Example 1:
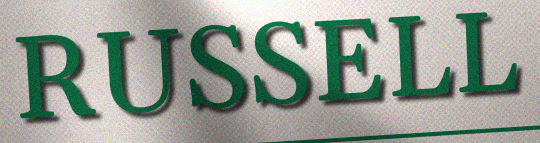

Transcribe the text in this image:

RUSSELL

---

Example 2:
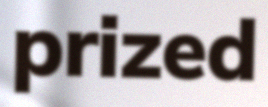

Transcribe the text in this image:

prized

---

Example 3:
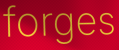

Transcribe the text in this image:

forges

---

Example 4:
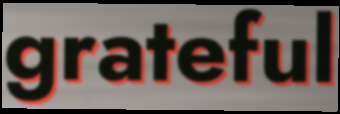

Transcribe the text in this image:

grateful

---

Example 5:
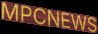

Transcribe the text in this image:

MPCNEWS